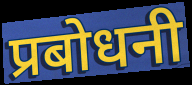
प्रबोधनी